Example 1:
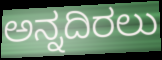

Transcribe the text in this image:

ಅನ್ನದಿರಲು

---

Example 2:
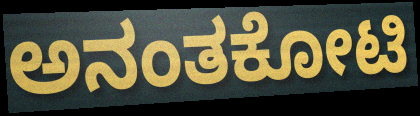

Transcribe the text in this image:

ಅನಂತಕೋಟಿ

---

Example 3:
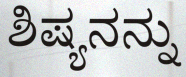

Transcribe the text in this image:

ಶಿಷ್ಯನನ್ನು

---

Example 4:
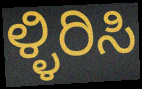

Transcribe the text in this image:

ಳ್ಳಿರಿಸಿ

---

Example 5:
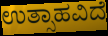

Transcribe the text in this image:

ಉತ್ಸಾಹವಿದೆ